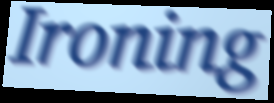
Ironing